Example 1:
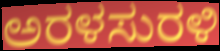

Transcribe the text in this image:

ಅರಳಸುರಳಿ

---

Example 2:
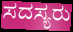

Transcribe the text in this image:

ಸದಸ್ಯರು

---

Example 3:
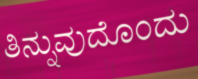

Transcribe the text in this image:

ತಿನ್ನುವುದೊಂದು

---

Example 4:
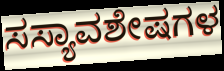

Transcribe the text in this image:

ಸಸ್ಯಾವಶೇಷಗಳ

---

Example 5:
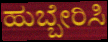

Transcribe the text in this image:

ಹುಬ್ಬೇರಿಸಿ